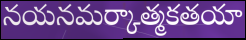
నయనమర్కాత్మకతయా